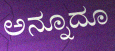
ಅನ್ನೂದೂ